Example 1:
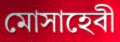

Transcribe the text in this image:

মোসাহেবী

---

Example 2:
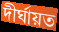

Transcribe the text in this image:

দীর্ঘায়ত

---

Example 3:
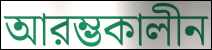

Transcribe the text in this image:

আরম্ভকালীন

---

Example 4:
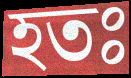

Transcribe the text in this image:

হতঃ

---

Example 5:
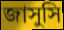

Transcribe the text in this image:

জাসুসি